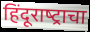
हिंदूराष्ट्राचा